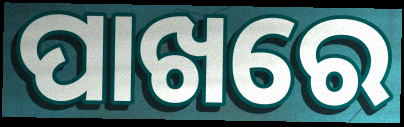
ପାଖରେ